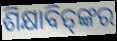
ଶିକ୍ଷାବିତ୍‌ଙ୍କର